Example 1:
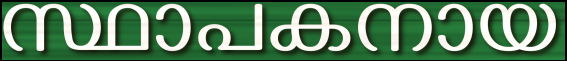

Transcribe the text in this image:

സ്ഥാപകനായ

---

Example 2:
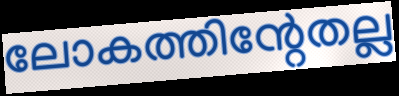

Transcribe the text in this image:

ലോകത്തിന്റേതല്ല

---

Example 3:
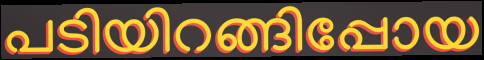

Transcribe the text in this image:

പടിയിറങ്ങിപ്പോയ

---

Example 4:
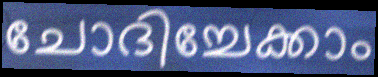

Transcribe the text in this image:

ചോദിച്ചേക്കാം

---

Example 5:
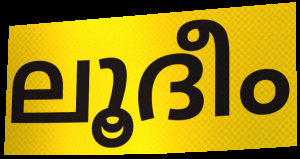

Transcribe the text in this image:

ലൂദീം